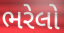
ભરેલો